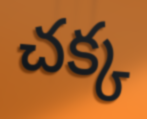
చక్క